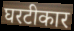
घरटीकार